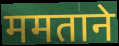
ममताने